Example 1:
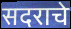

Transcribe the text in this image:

सदराचे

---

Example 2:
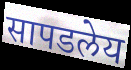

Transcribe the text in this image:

सापडलेय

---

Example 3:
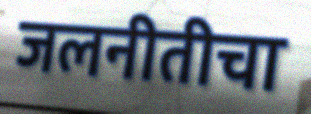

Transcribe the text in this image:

जलनीतीचा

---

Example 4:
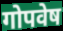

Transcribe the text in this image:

गोपवेष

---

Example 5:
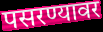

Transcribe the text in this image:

पसरण्यावर